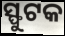
ସ୍ଫୁଟକ